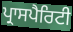
ਪ੍ਰਾਸਪੈਰਿਟੀ